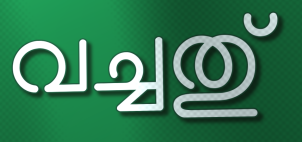
വച്ചതു്